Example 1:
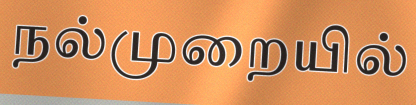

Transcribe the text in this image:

நல்முறையில்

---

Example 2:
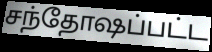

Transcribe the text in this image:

சந்தோஷப்பட்ட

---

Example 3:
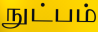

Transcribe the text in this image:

நுட்பம்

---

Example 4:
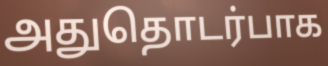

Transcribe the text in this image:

அதுதொடர்பாக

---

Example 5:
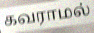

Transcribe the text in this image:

கவராமல்